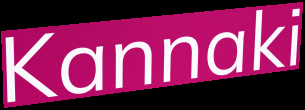
Kannaki